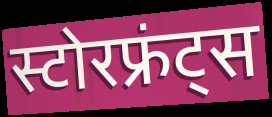
स्टोरफ्रंट्स